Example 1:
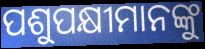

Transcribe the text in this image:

ପଶୁପକ୍ଷୀମାନଙ୍କୁ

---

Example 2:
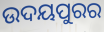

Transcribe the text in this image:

ଉଦୟପୁରର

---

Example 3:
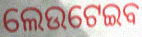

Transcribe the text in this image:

ଲେଉଟେଇବ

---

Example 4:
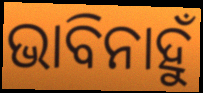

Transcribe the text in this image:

ଭାବିନାହୁଁ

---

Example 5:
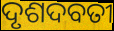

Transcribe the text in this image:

ଦୃଶଦବତୀ